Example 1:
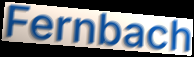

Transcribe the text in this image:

Fernbach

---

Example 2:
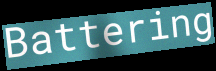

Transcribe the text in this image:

Battering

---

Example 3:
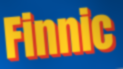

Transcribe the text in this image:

Finnic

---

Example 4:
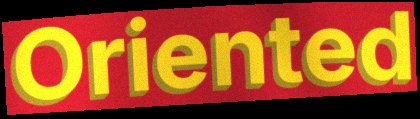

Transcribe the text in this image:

Oriented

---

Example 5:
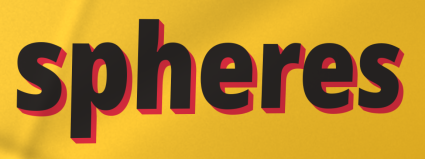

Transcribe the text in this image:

spheres